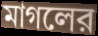
মাগলের